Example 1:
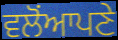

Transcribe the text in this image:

ਵਲੋਂਆਪਣੇ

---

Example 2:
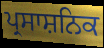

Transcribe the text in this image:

ਪ੍ਰਸਾਸ਼ਨਿਕ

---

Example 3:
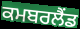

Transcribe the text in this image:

ਕਮਬਰਲੈਂਡ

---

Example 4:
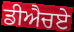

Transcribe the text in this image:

ਡੀਐਚਏ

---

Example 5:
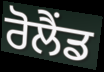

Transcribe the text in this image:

ਰੋਲੈਂਡ